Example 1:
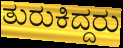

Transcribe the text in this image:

ತುರುಕಿದ್ದರು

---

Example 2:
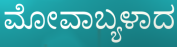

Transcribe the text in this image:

ಮೋವಾಬ್ಯಳಾದ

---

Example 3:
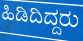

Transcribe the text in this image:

ಹಿಡಿದಿದ್ದರು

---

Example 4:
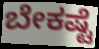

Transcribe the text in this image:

ಬೇಕಷ್ಟೆ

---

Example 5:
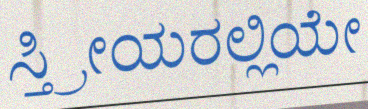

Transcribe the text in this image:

ಸ್ತ್ರೀಯರಲ್ಲಿಯೇ